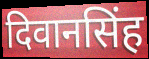
दिवानसिंह